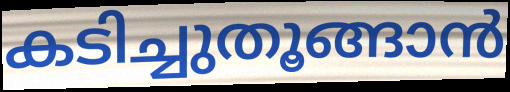
കടിച്ചുതൂങ്ങാൻ